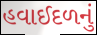
હવાઈદળનું